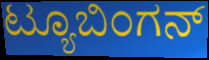
ಟ್ಯೂಬಿಂಗನ್